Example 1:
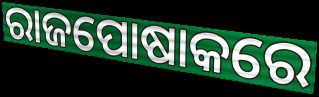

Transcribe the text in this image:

ରାଜପୋଷାକରେ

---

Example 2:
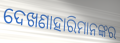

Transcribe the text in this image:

ଦେଖଣାହାରିମାନଙ୍କର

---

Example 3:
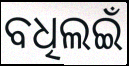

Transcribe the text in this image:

ବଧିଲଇଁ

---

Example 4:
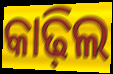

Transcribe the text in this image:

କାଢ଼ିଲ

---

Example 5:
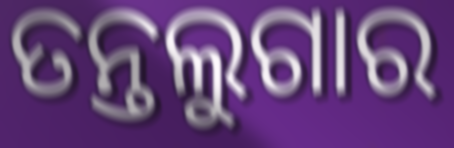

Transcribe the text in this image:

ତନ୍ତଲୁଗାର